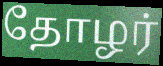
தோழர்